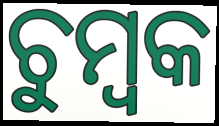
ଚୁମ୍ବକ